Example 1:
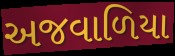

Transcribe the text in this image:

અજવાળિયા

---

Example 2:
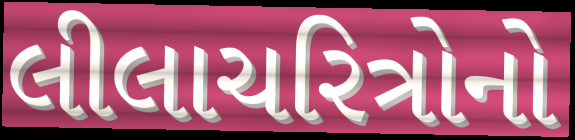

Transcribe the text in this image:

લીલાચરિત્રોનો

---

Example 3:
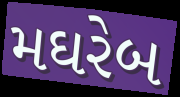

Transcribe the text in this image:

મઘરેબ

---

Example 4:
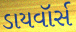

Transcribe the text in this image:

ડાયવૉર્સ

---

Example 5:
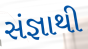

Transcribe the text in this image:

સંજ્ઞાથી